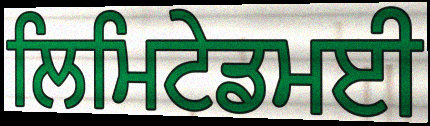
ਲਿਮਿਟੇਡਮਈ